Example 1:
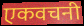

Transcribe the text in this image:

एकवचनी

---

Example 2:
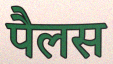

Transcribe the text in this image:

पैलस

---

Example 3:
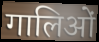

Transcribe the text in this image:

गालिओं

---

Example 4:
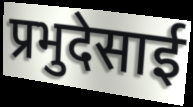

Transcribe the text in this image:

प्रभुदेसाई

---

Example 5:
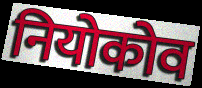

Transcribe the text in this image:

नियोकोव